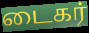
டைகர்